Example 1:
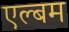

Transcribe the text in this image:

एल्बम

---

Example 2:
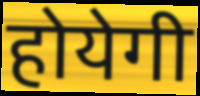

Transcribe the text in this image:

होयेगी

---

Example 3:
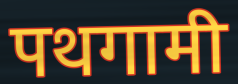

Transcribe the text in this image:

पथगामी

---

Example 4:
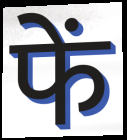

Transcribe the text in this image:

फें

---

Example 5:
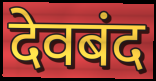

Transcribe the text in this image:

देवबंद